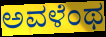
ಅವಳೆಂಥ